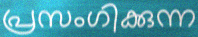
പ്രസംഗിക്കുന്ന